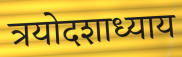
त्रयोदशाध्याय